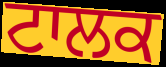
ਟਾਲਕ